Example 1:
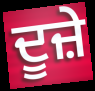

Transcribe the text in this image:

ਦੂਜ਼ੇ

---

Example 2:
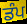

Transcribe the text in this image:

ਡੰਪ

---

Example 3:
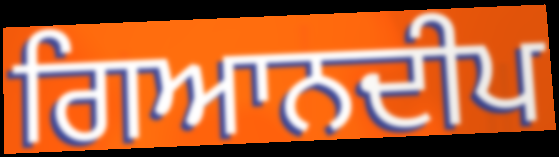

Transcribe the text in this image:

ਗਿਆਨਦੀਪ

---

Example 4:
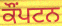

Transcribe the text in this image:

ਕੌਂਪਟਨ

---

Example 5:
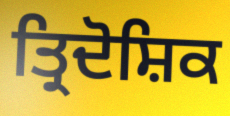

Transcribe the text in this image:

ਤ੍ਰਿਦੋਸ਼ਿਕ